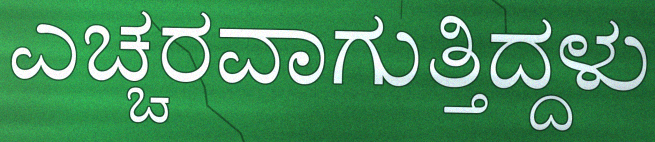
ಎಚ್ಚರವಾಗುತ್ತಿದ್ದಳು